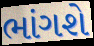
ભાંગશે